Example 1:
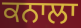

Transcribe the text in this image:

ਕਨਾਲਾ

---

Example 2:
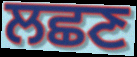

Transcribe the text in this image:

ਲਛਣ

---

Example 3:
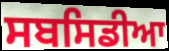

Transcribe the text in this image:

ਸਬਸਿਡੀਆ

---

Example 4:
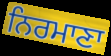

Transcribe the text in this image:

ਨਿਰਮਾਣਾ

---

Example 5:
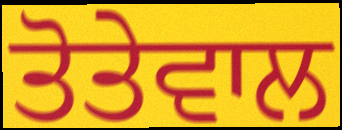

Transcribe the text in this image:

ਤੋਤੇਵਾਲ